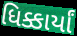
ધિક્કાર્યાં